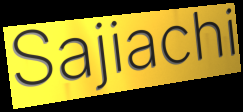
Sajiachi